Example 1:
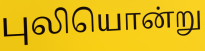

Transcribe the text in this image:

புலியொன்று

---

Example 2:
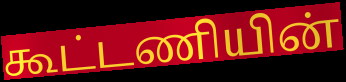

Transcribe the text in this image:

கூட்டணியின்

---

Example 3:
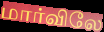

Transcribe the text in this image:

மார்விலே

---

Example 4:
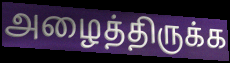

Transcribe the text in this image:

அழைத்திருக்க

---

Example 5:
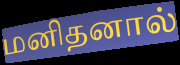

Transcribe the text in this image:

மனிதனால்